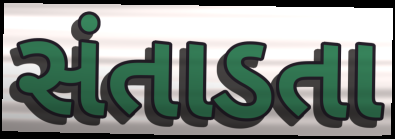
સંતાડતા